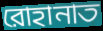
রোহানাত